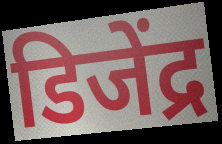
डिजेंद्र